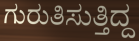
ಗುರುತಿಸುತ್ತಿದ್ದ